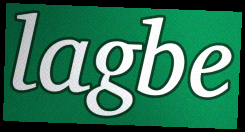
lagbe